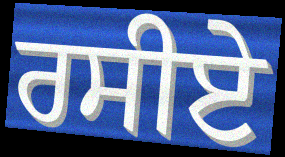
ਰਸੀਏ